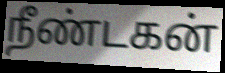
நீண்டகன்